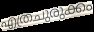
എത്രചുരുക്കം